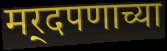
मर्दपणाच्या